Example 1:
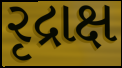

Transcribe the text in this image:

રૃદ્રાક્ષ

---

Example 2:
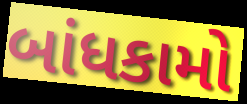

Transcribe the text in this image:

બાંધકામો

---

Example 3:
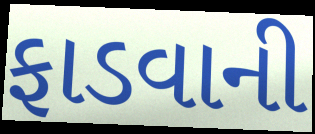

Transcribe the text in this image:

ફાડવાની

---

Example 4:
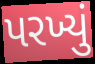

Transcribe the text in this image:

પરખ્યું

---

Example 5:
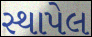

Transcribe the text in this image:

સ્થાપેલ